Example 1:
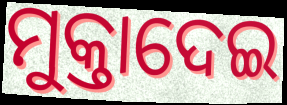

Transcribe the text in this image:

ମୁକ୍ତାଦେଇ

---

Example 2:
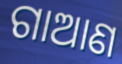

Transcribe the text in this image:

ଗାଆଣ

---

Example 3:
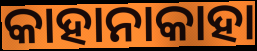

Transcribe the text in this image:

କାହାନାକାହା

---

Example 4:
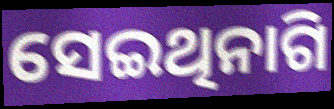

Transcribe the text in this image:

ସେଇଥିନାଗି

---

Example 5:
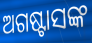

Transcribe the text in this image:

ଅଗଷ୍ଟାସଙ୍କ